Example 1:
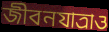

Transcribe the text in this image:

জীবনযাত্রাও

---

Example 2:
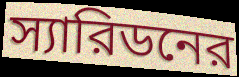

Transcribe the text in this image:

স্যারিডনের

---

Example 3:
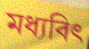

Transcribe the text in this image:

মধ্যবিৎ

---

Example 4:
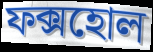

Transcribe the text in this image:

ফক্সহোল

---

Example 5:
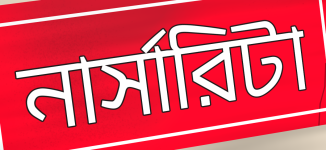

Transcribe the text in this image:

নার্সারিটা